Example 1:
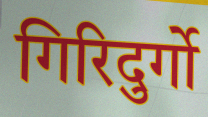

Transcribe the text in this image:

गिरिदुर्गो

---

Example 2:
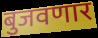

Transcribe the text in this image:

बुजवणार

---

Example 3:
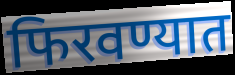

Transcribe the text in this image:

फिरवण्यात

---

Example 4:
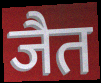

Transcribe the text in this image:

जैत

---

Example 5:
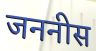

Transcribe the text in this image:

जननीस